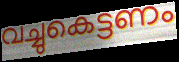
വച്ചുകെട്ടണം